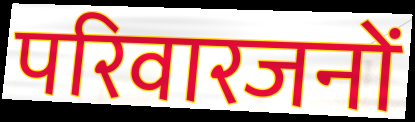
परिवारजनों